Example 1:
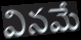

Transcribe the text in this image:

వినమే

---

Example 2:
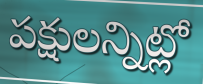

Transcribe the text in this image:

పక్షులన్నిట్లో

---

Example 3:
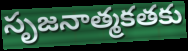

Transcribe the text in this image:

సృజనాత్మకతకు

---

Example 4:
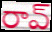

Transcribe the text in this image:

రావ్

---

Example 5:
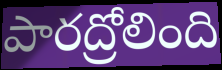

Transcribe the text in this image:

పారద్రోలింది